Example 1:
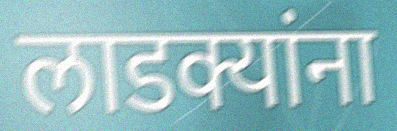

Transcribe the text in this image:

लाडक्यांना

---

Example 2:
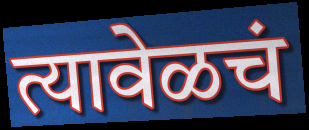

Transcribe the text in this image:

त्यावेळचं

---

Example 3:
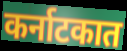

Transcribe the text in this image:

कर्नाटकात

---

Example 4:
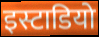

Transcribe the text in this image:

इस्टाडियो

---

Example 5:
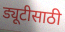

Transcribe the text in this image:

ड्यूटीसाठी